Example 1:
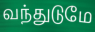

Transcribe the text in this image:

வந்துடுமே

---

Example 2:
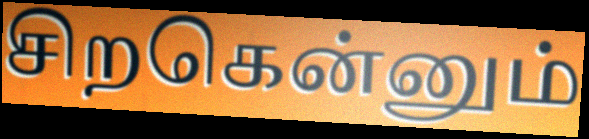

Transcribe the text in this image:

சிறகென்னும்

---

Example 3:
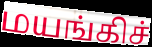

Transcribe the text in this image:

மயங்கிச்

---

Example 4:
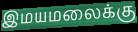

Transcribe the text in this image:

இமயமலைக்கு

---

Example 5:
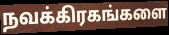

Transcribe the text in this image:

நவக்கிரகங்களை